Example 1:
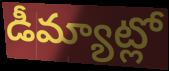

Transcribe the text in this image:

డీమ్యాట్లో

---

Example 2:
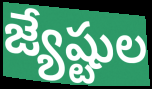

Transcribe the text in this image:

జ్యేష్టుల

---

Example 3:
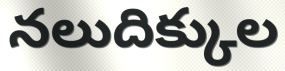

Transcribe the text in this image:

నలుదిక్కుల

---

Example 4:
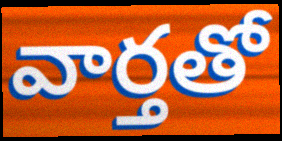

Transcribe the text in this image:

వార్తతో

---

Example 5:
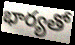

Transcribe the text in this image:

భార్యతో